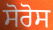
ਸੋਰੋਸ